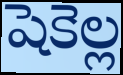
షెకెల్ల